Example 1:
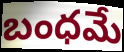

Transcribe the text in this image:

బంధమే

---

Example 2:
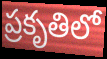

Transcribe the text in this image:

ప్రకృతిలో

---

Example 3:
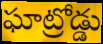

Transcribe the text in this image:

ఘాట్రోడ్డు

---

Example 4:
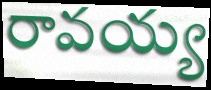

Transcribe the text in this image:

రావయ్య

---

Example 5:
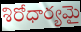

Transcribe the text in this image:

శిరోధార్యమై